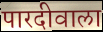
पारदीवाला